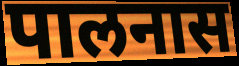
पालनास